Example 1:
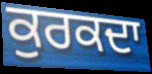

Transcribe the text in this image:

ਕੁਰਕਦਾ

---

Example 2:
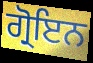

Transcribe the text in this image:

ਗ੍ਰੋਇਨ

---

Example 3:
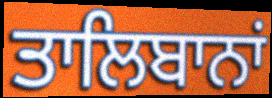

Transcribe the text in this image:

ਤਾਲਿਬਾਨਾਂ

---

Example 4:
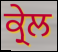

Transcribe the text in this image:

ਕ੍ਰੇਲ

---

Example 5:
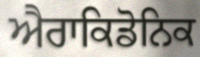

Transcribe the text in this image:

ਐਰਾਕਿਡੋਨਿਕ